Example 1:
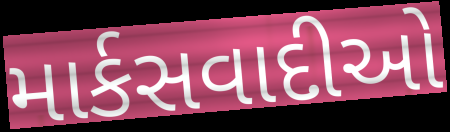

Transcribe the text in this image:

માર્કસવાદીઓ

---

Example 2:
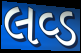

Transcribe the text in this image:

લવ્ડ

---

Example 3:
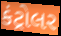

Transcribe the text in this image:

કંટ્રોલર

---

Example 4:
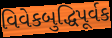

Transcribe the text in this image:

વિવેકબુદ્ધિપૂર્વક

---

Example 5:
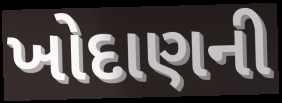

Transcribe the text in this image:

ખોદાણની